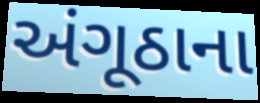
અંગૂઠાના